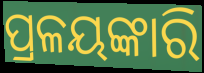
ପ୍ରଳୟଙ୍କାରି